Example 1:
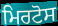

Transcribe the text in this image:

ਮਿਰਟੋਸ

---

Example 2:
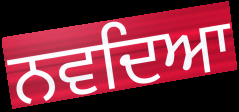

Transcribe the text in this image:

ਨਵਦਿਆ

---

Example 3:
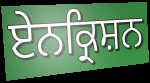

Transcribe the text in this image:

ਏਨਕ੍ਰਿਸ਼ਨ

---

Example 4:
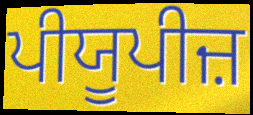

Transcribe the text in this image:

ਪੀਯੂਪੀਜ਼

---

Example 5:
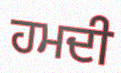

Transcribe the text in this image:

ਹਮਦੀ